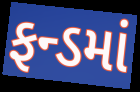
ફન્ડમાં